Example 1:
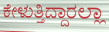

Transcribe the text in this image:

ಕೇಳುತ್ತಿದ್ದಾರಲ್ಲಾ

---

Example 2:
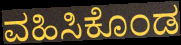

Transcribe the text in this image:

ವಹಿಸಿಕೊಂಡ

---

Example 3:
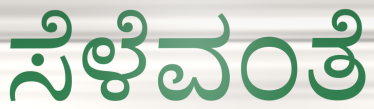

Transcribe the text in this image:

ಸೆಳೆವಂತೆ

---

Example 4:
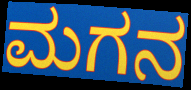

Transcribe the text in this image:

ಮಗನ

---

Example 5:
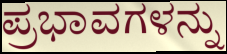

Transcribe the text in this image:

ಪ್ರಭಾವಗಳನ್ನು